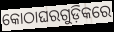
କୋଠାଘରଗୁଡ଼ିକରେ